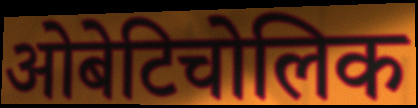
ओबेटिचोलिक